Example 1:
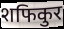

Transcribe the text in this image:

शफिकुर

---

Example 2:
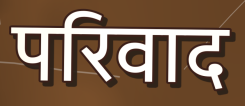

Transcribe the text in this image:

परिवाद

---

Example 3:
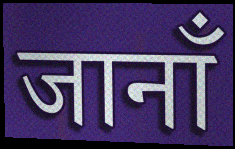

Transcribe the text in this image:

जानाँ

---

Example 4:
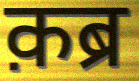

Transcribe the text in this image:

क़ब्र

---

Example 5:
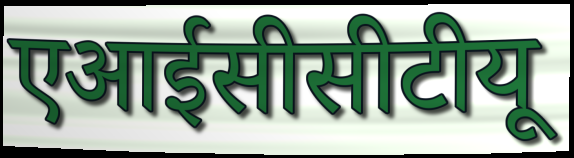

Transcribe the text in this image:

एआईसीसीटीयू